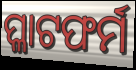
ପ୍ଳାଟଫର୍ମ